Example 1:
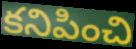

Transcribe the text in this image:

కనిపించి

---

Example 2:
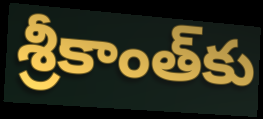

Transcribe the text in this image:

శ్రీకాంత్‌కు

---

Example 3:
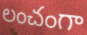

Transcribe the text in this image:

లంచంగా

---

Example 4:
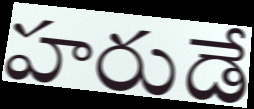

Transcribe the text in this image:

హరుడే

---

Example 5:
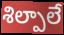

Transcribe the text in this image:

శిల్పాలే